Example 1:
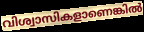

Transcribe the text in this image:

വിശ്വാസികളാണെങ്കിൽ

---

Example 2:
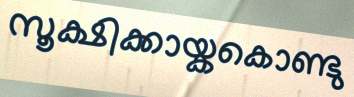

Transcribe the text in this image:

സൂക്ഷിക്കായ്കകൊണ്ടു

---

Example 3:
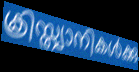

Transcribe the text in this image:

ക്രിസ്ത്യാനികൾക്കു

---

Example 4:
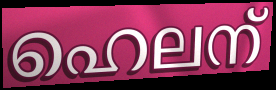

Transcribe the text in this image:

ഹെലന്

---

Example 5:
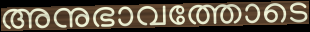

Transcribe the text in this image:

അനുഭാവത്തോടെ